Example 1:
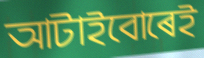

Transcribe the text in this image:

আটাইবোৰেই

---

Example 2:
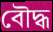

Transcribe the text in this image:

বৌদ্ধ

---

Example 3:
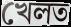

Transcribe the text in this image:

খেলত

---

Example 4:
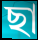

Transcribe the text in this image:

ছা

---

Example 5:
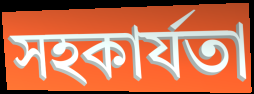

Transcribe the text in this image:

সহকাৰ্যতা